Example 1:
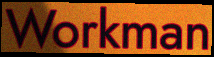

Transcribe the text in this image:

Workman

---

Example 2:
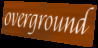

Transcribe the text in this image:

overground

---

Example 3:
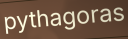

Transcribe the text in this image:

pythagoras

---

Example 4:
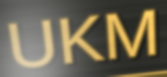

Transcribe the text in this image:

UKM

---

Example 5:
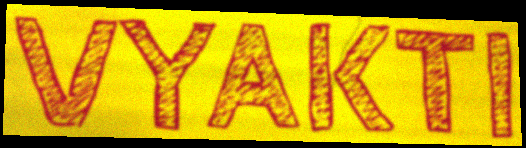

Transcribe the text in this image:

VYAKTI